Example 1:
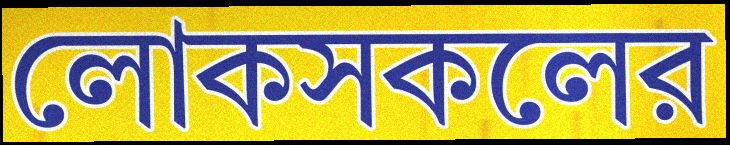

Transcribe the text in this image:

লোকসকলের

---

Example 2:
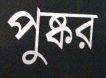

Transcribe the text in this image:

পুষ্কর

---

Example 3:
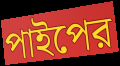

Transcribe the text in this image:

পাইপের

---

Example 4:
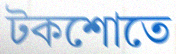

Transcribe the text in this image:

টকশোতে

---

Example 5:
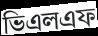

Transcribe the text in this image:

ভিএলএফ